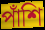
পাঁশি